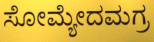
ಸೋಮ್ಯೇದಮಗ್ರ